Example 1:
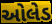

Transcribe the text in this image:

ઓલેડ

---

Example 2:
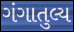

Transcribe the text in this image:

ગંગાતુલ્ય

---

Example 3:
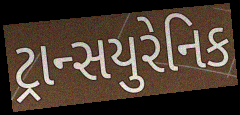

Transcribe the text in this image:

ટ્રાન્સયુરેનિક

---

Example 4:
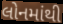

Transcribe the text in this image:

લોનમાંથી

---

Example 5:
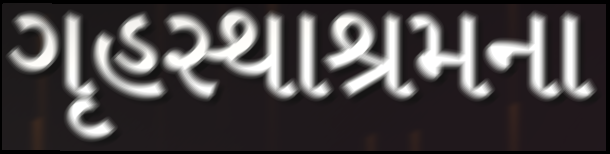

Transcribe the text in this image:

ગૃહસ્થાશ્રમના